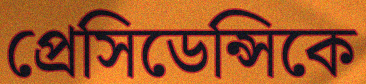
প্রেসিডেন্সিকে